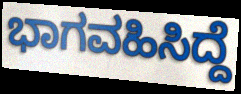
ಭಾಗವಹಿಸಿದ್ದೆ